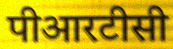
पीआरटीसी